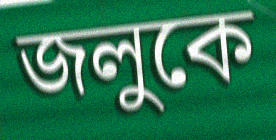
জলুকে